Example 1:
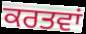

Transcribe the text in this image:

ਕਰਤਵਾਂ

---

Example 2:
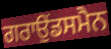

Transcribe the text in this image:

ਗਰਾਉਂਡਸਮੈਨ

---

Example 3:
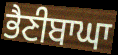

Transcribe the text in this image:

ਭੈਣੀਬਾਘਾ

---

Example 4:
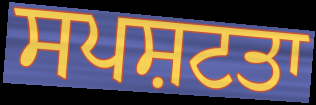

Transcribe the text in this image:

ਸਪਸ਼ਟਤਾ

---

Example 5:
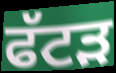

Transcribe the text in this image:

ਫੱਟੜ